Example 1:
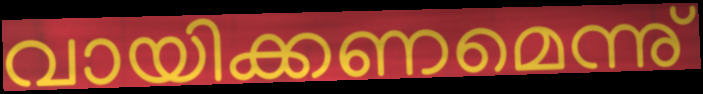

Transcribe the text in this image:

വായിക്കണമെന്നു്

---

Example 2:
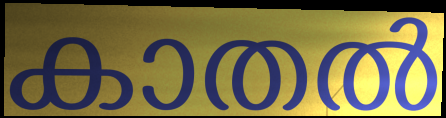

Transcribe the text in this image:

കാതൽ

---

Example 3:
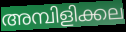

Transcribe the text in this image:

അമ്പിളിക്കല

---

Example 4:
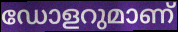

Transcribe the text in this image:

ഡോളറുമാണ്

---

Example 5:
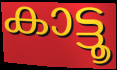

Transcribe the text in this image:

കാട്ടൂ